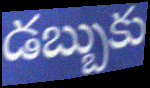
డబ్బుకు